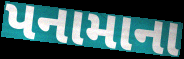
પનામાના